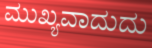
ಮುಖ್ಯವಾದುದು